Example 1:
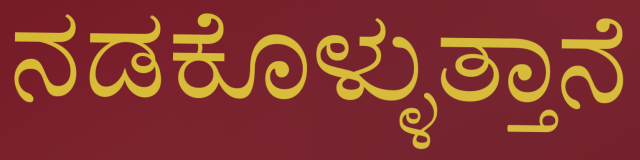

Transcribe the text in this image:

ನಡಕೊಳ್ಳುತ್ತಾನೆ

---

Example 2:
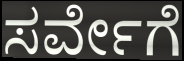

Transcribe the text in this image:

ಸರ್ವೇಗೆ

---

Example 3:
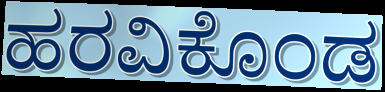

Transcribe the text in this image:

ಹರವಿಕೊಂಡ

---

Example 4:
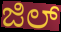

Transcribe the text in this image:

ಜಿಲ್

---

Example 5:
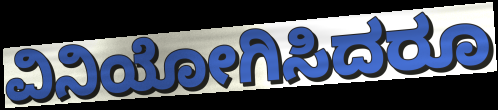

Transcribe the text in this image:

ವಿನಿಯೋಗಿಸಿದರೂ